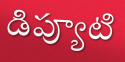
డిప్యూటి